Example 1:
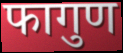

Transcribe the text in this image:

फागुण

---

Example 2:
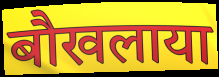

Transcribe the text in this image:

बौखलाया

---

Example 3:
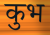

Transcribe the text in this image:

कुभ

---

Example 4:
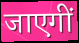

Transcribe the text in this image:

जाएगीं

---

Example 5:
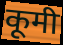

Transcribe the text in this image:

कूमी